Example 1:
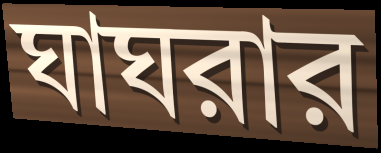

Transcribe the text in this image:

ঘাঘরার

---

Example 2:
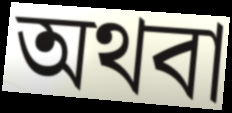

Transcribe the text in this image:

অথবা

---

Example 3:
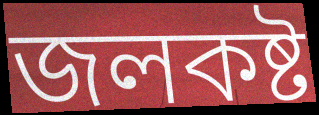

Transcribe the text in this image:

জলকষ্ট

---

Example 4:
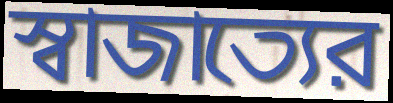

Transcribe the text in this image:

স্বাজাত্যের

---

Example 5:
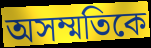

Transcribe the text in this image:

অসম্মতিকে